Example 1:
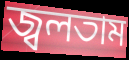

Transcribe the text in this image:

জ্বলতাম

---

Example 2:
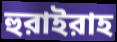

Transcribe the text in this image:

হুরাইরাহ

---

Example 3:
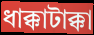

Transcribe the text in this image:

ধাক্কাটাক্কা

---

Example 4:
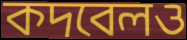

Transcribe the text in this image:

কদবেলও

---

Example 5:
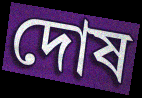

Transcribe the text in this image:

দোষ